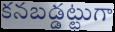
కనబడ్డట్టుగా